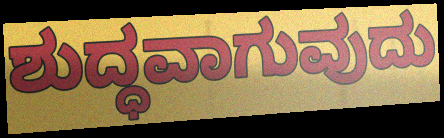
ಶುದ್ಧವಾಗುವುದು